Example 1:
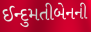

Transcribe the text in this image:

ઈન્દુમતીબેનની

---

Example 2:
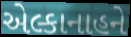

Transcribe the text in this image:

એલ્કાનાહને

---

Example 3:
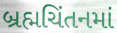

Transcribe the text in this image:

બ્રહ્મચિંતનમાં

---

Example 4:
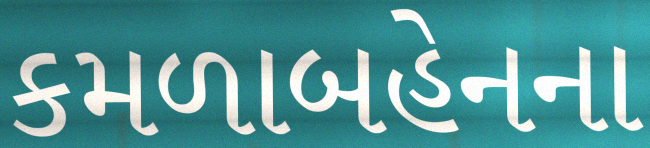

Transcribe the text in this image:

કમળાબહેનના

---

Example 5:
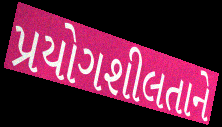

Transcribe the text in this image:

પ્રયોગશીલતાને